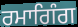
ਰਮਾਗਿੰਗ